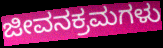
ಜೀವನಕ್ರಮಗಳು